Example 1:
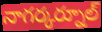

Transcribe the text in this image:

నాగర్కర్నూల్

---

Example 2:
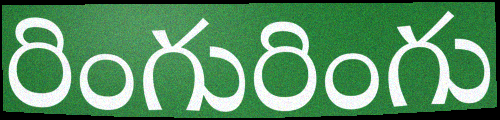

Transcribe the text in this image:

రింగురింగు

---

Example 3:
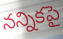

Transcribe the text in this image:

నన్నికపై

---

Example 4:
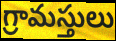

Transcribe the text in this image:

గ్రామస్తులు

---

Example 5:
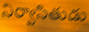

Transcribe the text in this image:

నిర్వాసితుడు